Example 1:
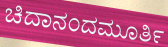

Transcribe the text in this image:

ಚಿದಾನಂದಮೂರ್ತಿ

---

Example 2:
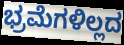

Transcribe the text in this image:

ಭ್ರಮೆಗಳಿಲ್ಲದ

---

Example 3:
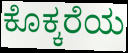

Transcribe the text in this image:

ಕೊಕ್ಕರೆಯ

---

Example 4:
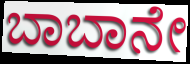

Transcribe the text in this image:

ಬಾಬಾನೇ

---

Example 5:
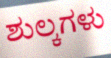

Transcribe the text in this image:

ಶುಲ್ಕಗಳು